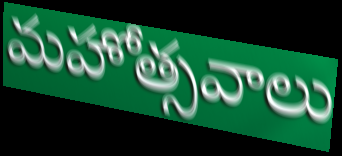
మహోత్సవాలు